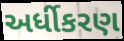
અર્ધીકરણ